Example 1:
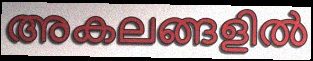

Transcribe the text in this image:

അകലങ്ങളിൽ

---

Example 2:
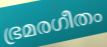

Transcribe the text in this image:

ഭ്രമരഗീതം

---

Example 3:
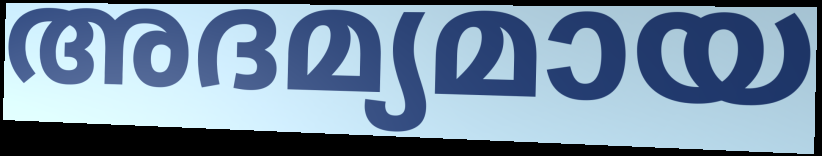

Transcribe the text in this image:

അദമ്യമായ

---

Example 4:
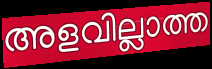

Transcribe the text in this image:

അളവില്ലാത്ത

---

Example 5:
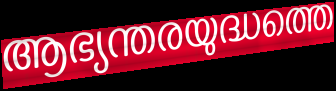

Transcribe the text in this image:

ആഭ്യന്തരയുദ്ധത്തെ